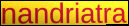
nandriatra